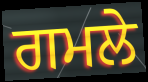
ਗਮਲੇ